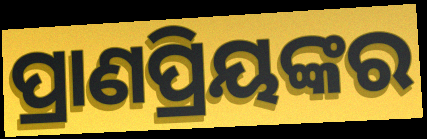
ପ୍ରାଣପ୍ରିୟଙ୍କର